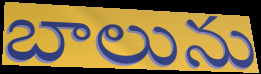
బాలును